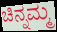
ಚಿನ್ನಮ್ಮ